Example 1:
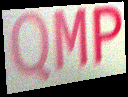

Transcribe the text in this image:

QMP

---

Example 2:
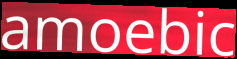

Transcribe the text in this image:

amoebic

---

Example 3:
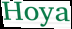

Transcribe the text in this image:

Hoya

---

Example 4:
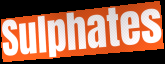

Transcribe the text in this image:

Sulphates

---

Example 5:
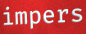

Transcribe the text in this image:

impers